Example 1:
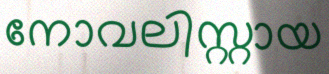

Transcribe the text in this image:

നോവലിസ്റ്റായ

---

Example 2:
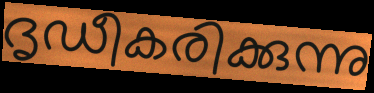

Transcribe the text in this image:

ദൃഡീകരിക്കുന്നു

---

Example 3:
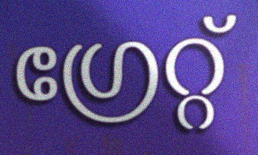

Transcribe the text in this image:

ഗ്രേറ്റ്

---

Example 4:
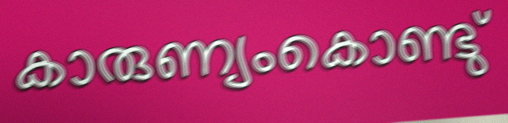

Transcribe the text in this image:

കാരുണ്യംകൊണ്ടു്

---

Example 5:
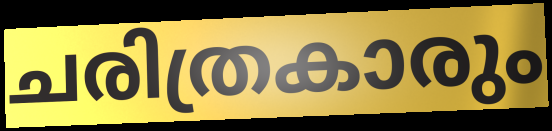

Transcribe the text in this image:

ചരിത്രകാരും